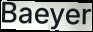
Baeyer